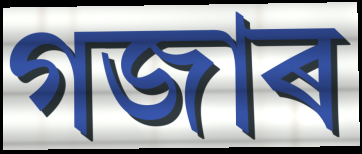
গজাৰ